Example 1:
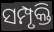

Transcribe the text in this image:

ସମ୍ପୃକ୍ତି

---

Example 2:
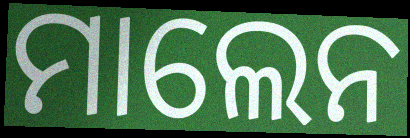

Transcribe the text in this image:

ମାଲେନ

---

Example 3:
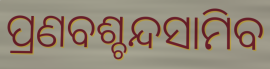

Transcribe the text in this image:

ପ୍ରଣବଶ୍ଚନ୍ଦସାମିବ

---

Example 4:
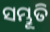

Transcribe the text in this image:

ସମ୍ଭୂତି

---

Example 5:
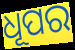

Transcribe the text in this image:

ଧୂପର